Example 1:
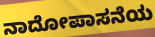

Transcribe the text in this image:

ನಾದೋಪಾಸನೆಯ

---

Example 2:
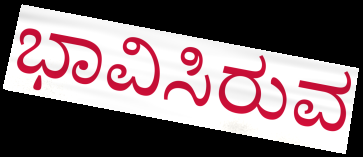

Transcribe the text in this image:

ಭಾವಿಸಿರುವ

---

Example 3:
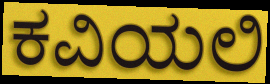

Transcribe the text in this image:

ಕವಿಯಲಿ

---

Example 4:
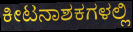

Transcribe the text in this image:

ಕೀಟನಾಶಕಗಳಲ್ಲಿ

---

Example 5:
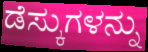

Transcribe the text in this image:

ಡೆಸ್ಕುಗಳನ್ನು